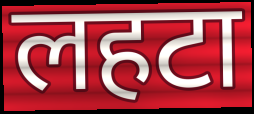
लहटा